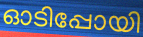
ഓടിപ്പോയി